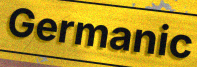
Germanic